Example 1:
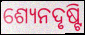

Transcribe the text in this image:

ଶ୍ୟେନଦୃଷ୍ଟି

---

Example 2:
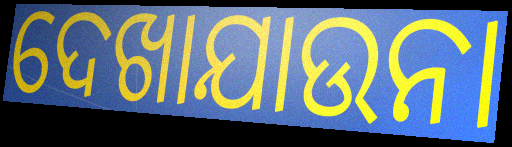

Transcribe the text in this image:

ଦେଖାଯାଉନା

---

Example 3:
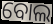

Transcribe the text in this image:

ବୋଲ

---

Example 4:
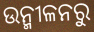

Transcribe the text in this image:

ଉନ୍ମୀଳନରୁ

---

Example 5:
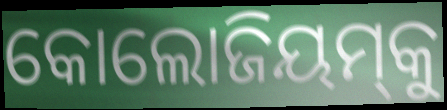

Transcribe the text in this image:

କୋଲୋଜିୟମ୍‍କୁ